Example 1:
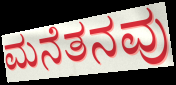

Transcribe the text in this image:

ಮನೆತನವು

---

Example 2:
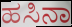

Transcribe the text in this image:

ಹಸಿನಾ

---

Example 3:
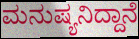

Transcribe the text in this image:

ಮನುಷ್ಯನಿದ್ದಾನೆ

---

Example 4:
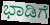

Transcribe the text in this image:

ಭಾಡಿಗೆ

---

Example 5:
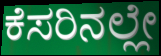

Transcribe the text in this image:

ಕೆಸರಿನಲ್ಲೇ